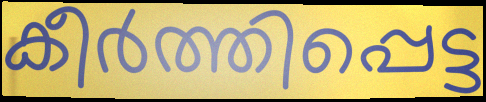
കീർത്തിപ്പെട്ട